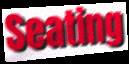
Seating